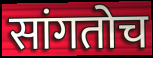
सांगतोच